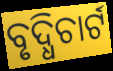
ବୃଦ୍ଧିଚାର୍ଟ